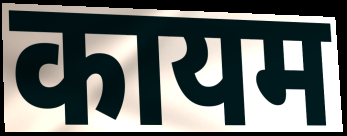
कायम